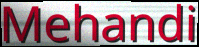
Mehandi